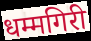
धम्मगिरी